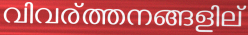
വിവര്ത്തനങ്ങളില്